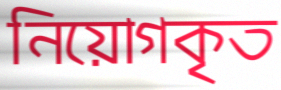
নিয়োগকৃত